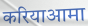
करियाआमा